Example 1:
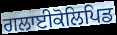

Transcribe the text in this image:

ਗਲਾਈਕੋਲਿਪਿਡ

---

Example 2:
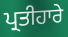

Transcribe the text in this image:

ਪ੍ਰਤੀਹਾਰੇ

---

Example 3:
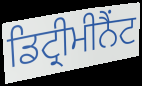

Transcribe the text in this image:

ਡਿਟ੍ਰੀਮੀਨੈਂਟ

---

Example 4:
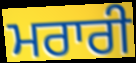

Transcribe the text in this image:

ਮਰਾਰੀ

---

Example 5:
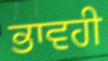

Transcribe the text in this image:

ਭਾਵਹੀ